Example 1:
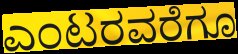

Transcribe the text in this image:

ಎಂಟರವರೆಗೂ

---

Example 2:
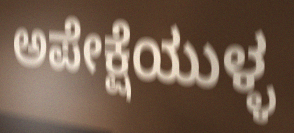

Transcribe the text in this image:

ಅಪೇಕ್ಷೆಯುಳ್ಳ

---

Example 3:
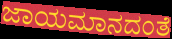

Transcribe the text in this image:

ಜಾಯಮಾನದಂತೆ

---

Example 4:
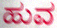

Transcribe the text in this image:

ಹುವ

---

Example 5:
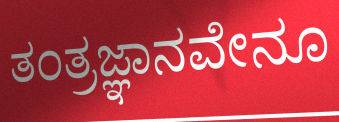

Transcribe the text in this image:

ತಂತ್ರಜ್ಞಾನವೇನೂ